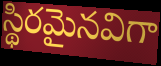
స్థిరమైనవిగా